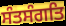
ਸੰਤਸੰਗਤਿ